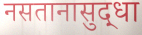
नसतानासुद्धा